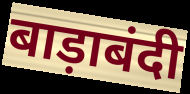
बाड़ाबंदी